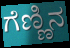
ಗೆಣ್ಣಿನ